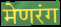
मेणरंग